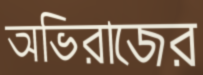
অভিরাজের